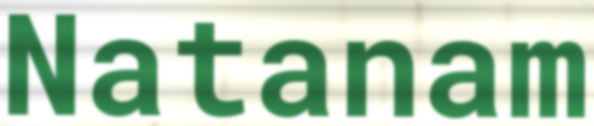
Natanam